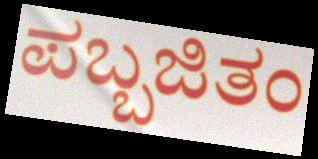
ಪಬ್ಬಜಿತಂ